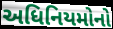
અધિનિયમોનો